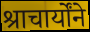
श्राचार्योंने